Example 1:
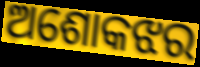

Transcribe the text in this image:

ଅଶୋକଝର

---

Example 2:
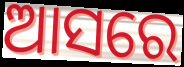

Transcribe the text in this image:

ଆସରେ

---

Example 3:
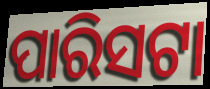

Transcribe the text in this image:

ପାରିସଟା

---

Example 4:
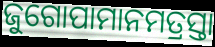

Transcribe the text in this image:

ଜୁଗୋପାମାନମତ୍ରସ୍ତା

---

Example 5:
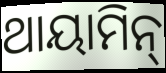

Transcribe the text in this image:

ଥାୟାମିନ୍